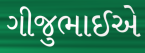
ગીજુભાઈએ